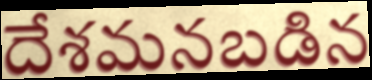
దేశమనబడిన